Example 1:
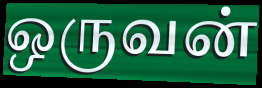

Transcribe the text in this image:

ஒருவன்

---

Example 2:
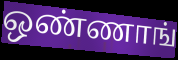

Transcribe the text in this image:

ஒண்ணாங்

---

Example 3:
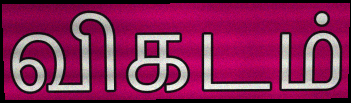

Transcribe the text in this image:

விகடம்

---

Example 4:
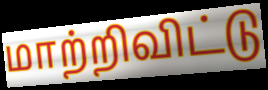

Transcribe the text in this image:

மாற்றிவிட்டு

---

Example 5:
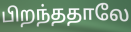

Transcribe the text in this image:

பிறந்ததாலே